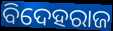
ବିଦେହରାଜ